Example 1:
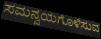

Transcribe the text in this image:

ಸಮನ್ವಯಗೊಳಿಸುವ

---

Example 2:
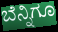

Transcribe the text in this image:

ಬೆನ್ನಿಗೂ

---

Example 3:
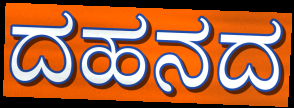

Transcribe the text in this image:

ದಹನದ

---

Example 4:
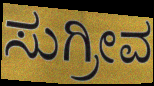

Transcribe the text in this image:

ಸುಗ್ರೀವ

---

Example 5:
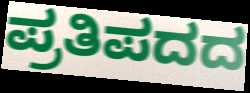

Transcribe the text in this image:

ಪ್ರತಿಪದದ